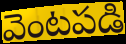
వెంటపడి